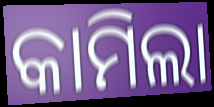
କାମିଲା